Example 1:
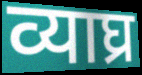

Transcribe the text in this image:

व्याघ्र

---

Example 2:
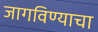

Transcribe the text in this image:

जागविण्याचा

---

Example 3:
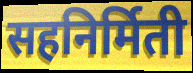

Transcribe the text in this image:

सहनिर्मिती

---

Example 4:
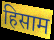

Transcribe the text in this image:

हिसाम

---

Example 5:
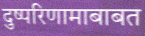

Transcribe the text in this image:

दुष्परिणामाबाबत